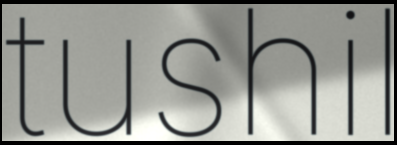
tushil